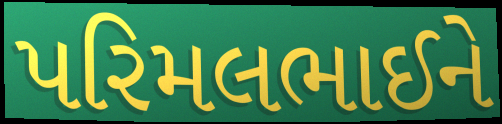
પરિમલભાઈને